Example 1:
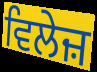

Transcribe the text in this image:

ਵਿਲੇਜ਼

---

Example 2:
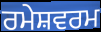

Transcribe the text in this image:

ਰਮੇਸ਼ਵਰਮ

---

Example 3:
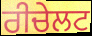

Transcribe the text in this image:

ਰੀਚੇਲਟ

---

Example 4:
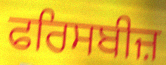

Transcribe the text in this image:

ਫਰਿਸਬੀਜ਼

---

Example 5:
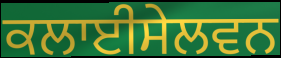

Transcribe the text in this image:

ਕਲਾਈਸੇਲਵਨ